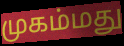
முகம்மது